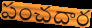
పంచదార